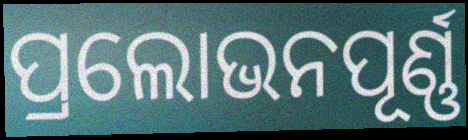
ପ୍ରଲୋଭନପୂର୍ଣ୍ଣ